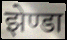
झेण्डा